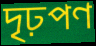
দৃঢ়পণ